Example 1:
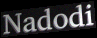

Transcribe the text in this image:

Nadodi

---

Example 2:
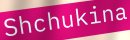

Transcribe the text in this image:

Shchukina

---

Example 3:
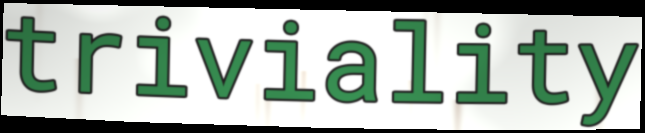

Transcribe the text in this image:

triviality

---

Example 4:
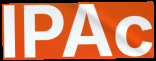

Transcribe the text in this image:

IPAc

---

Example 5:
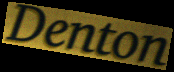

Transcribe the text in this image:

Denton